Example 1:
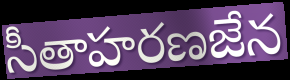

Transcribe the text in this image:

సీతాహరణజేన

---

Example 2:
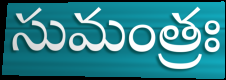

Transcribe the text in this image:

సుమంత్రః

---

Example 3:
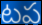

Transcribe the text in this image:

టప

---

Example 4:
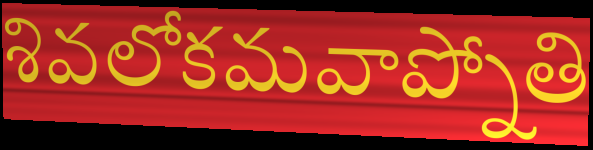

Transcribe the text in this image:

శివలోకమవాప్నోతి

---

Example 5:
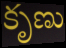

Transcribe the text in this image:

కృణు